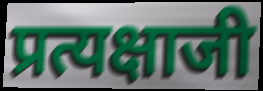
प्रत्यक्षाजी